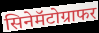
सिनेमॅटोग्राफर